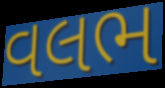
વલભ